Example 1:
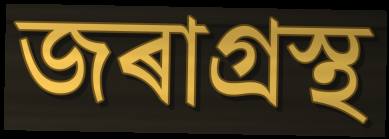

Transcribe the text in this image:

জৰাগ্ৰস্থ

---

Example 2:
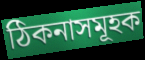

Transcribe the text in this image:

ঠিকনাসমূহক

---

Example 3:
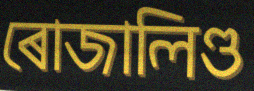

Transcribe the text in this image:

ৰোজালিণ্ড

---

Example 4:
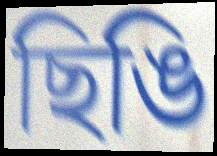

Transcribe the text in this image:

ছিঙি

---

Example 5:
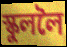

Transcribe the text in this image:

স্কুললৈ